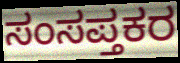
ಸಂಸಪ್ತಕರ